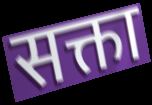
सक्ता